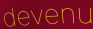
devenu